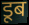
डूब